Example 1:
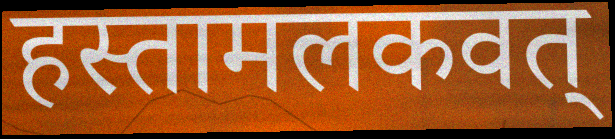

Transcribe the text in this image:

हस्तामलकवत्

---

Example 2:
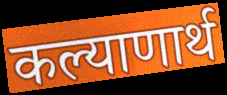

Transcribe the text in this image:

कल्याणार्थ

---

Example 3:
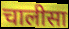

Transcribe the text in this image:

चालीसा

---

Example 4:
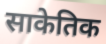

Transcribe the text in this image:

साकेतिक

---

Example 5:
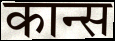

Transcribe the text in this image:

कान्स